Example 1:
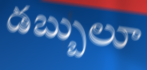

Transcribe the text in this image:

డబ్బులూ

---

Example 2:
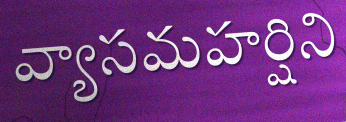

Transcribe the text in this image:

వ్యాసమహర్షిని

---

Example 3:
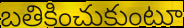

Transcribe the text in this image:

బతికించుకుంటూ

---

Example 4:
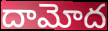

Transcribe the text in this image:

దామోద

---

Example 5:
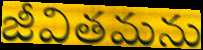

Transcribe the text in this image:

జీవితమను